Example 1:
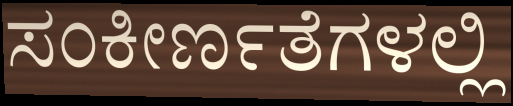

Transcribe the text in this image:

ಸಂಕೀರ್ಣತೆಗಳಲ್ಲಿ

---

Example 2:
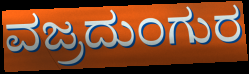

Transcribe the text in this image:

ವಜ್ರದುಂಗುರ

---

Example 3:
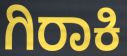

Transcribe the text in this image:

ಗಿರಾಕಿ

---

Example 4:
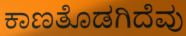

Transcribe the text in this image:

ಕಾಣತೊಡಗಿದೆವು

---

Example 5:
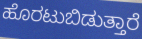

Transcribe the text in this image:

ಹೊರಟುಬಿಡುತ್ತಾರೆ